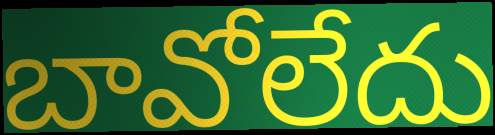
బావోలేదు